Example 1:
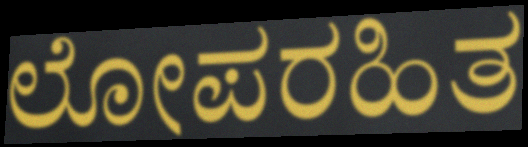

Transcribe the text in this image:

ಲೋಪರಹಿತ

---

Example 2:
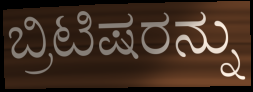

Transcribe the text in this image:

ಬ್ರಿಟಿಷರನ್ನು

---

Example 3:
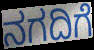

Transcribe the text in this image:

ನಗದಿಗೆ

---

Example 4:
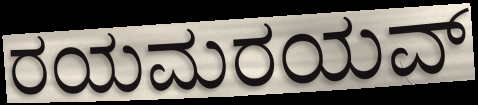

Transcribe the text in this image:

ರಯಮರಯವ್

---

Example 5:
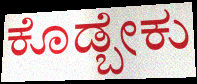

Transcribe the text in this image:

ಕೊಡ್ಬೇಕು